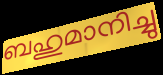
ബഹുമാനിച്ചു